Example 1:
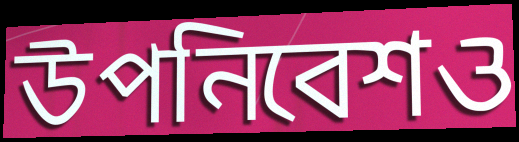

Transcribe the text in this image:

উপনিবেশও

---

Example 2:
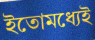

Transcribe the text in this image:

ইতোমধ্যেই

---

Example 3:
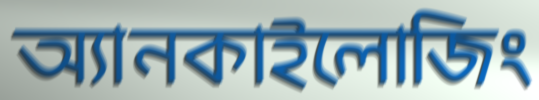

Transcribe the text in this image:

অ্যানকাইলোজিং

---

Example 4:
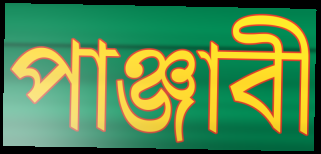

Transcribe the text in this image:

পাঞ্জাবী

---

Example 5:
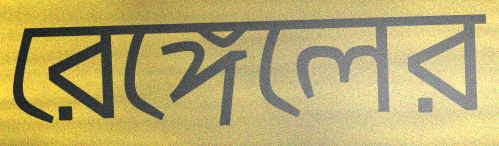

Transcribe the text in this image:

রেঙ্গেলের